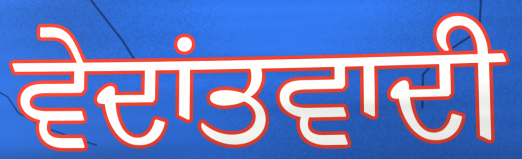
ਵੇਦਾਂਤਵਾਦੀ